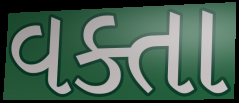
વક્તા